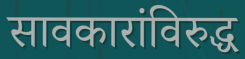
सावकारांविरुद्ध